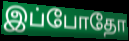
இப்போதோ